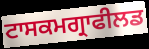
ਟਾਸਕਮਗ੍ਰਾਫੀਲਡ